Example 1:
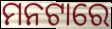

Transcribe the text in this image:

ମନଟାରେ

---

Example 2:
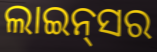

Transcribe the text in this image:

ଲାଇନ୍‍ସର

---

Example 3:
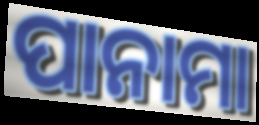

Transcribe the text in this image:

ପାନାମା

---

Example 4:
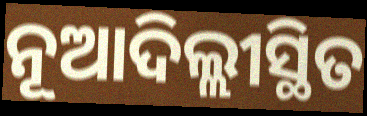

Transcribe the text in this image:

ନୂଆଦିଲ୍ଲୀସ୍ଥିତ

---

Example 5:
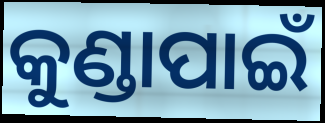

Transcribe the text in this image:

କୁଣ୍ଡାପାଇଁ